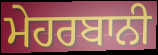
ਮੇਹਰਬਾਨੀ